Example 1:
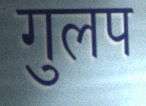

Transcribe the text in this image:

गुलप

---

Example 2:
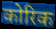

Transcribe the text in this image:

कोरिक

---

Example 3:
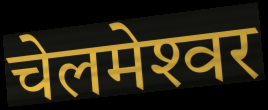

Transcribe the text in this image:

चेलमेश्‍वर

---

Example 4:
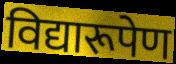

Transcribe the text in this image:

विद्यारूपेण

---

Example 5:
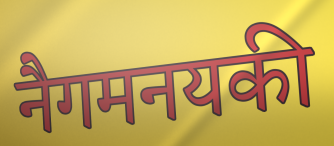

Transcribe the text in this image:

नैगमनयकी